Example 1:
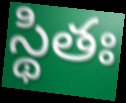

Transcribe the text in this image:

స్థితః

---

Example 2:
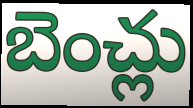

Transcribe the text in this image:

బెంచ్లు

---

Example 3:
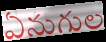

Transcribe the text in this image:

ఏనుగుల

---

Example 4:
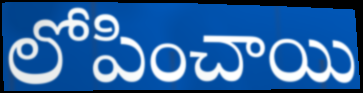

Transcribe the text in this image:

లోపించాయి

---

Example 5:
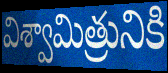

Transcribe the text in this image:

విశ్వామిత్రునికి